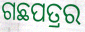
ଗଛପତ୍ରର